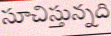
సూచిస్తున్నది